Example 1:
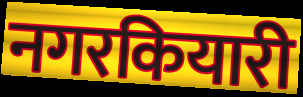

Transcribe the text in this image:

नगरकियारी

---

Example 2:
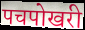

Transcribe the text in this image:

पचपोखरी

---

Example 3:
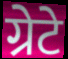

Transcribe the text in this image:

ग्रेटे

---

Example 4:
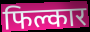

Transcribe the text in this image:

फिल्कार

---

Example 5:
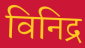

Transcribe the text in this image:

विनिद्र